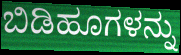
ಬಿಡಿಹೂಗಳನ್ನು